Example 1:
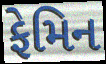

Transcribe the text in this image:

ફેમિન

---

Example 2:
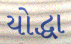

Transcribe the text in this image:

યોદ્ધા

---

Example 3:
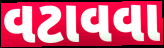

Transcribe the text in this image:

વટાવવા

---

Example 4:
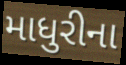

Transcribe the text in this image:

માધુરીના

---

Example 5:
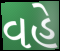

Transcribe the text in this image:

વહે